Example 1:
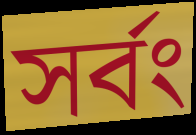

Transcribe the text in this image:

সর্বং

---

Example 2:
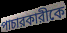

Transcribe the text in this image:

পাচারকারীকে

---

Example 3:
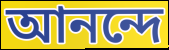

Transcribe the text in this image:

আনন্দে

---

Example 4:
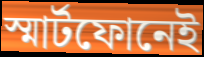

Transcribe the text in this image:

স্মার্টফোনেই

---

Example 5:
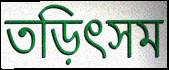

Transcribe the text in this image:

তড়িৎসম